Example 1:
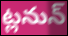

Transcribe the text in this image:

ట్లనున్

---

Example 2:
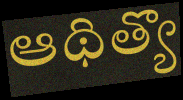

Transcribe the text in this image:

ఆథిత్యొ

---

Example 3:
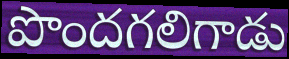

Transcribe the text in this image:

పొందగలిగాడు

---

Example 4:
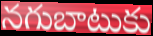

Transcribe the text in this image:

నగుబాటుకు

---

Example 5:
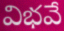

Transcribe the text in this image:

విభవే